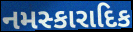
નમસ્કારાદિક